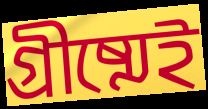
গ্রীষ্মেই